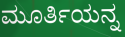
ಮೂರ್ತಿಯನ್ನ